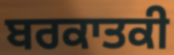
ਬਰਕਾਤਕੀ